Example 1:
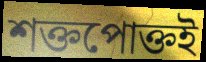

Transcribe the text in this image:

শক্তপোক্তই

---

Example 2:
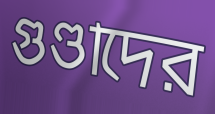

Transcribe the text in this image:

গুণ্ডাদের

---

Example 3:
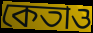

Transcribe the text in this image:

কেতাও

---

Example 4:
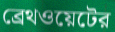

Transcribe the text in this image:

ব্রেথওয়েটের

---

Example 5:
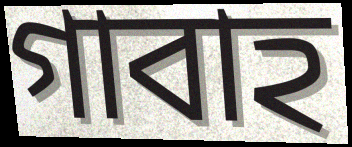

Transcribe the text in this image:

গাবাহ